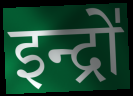
इन्द्रो॑